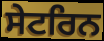
ਸੇਟਰਿਨ